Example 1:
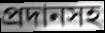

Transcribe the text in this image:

প্রদানসহ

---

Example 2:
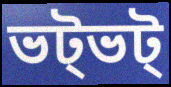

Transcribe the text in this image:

ভট্ভট্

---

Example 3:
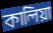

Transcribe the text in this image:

কালিয়া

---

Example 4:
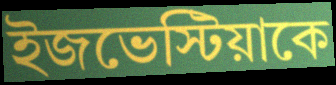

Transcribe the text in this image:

ইজভেস্টিয়াকে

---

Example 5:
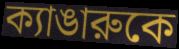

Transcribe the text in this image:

ক্যাঙারুকে